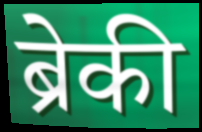
ब्रेकी